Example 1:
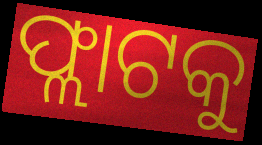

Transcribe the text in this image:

ଫ୍ଲାଟକୁ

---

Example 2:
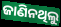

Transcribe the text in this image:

ଜାଣିନଥିଲୁ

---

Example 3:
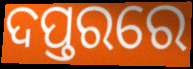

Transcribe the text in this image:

ଦପ୍ତରରେ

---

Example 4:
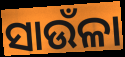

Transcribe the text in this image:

ସାଉଁଳା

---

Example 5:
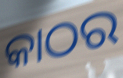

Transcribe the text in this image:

କାଠର